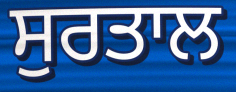
ਸੁਰਤਾਲ